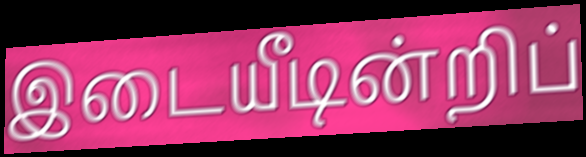
இடையீடின்றிப்